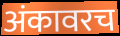
अंकावरच